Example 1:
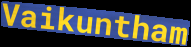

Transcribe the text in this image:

Vaikuntham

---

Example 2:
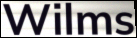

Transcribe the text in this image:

Wilms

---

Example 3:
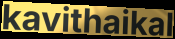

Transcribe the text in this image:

kavithaikal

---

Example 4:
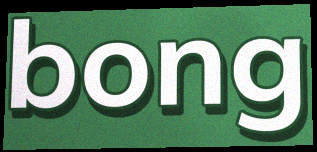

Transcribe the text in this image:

bong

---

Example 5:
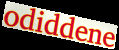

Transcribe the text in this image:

odiddene